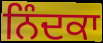
ਨਿੰਦਕਾ